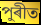
পুৰীত